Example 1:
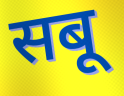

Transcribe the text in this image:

सबू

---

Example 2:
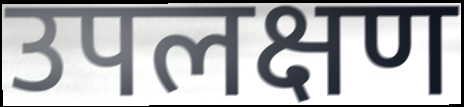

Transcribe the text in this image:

उपलक्षण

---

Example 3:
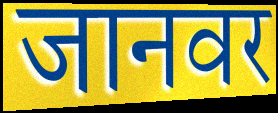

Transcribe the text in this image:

जानवर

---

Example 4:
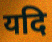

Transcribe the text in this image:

यदि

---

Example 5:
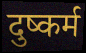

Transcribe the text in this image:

दुष्कर्म